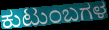
ಕುಟುಂಬಗಳ